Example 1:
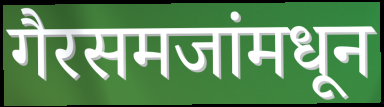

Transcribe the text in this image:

गैरसमजांमधून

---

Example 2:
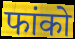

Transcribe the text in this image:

फांको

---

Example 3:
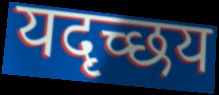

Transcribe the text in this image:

यदृच्छय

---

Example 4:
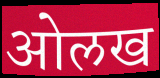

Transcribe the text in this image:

ओलख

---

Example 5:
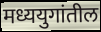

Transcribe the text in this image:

मध्ययुगांतील